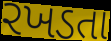
રખડતા